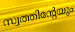
സ്വത്തിന്റേയും